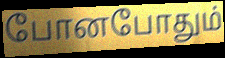
போனபோதும்